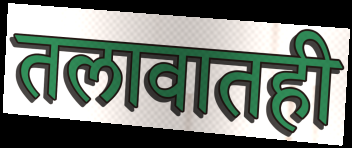
तलावातही